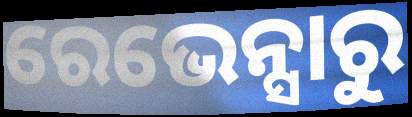
ରେଭେନ୍ସାରୁ